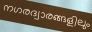
നഗരദ്വാരങ്ങളിലും